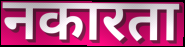
नकारता